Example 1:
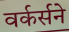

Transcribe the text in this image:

वर्कर्सने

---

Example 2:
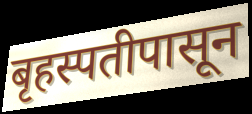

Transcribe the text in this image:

बृहस्पतीपासून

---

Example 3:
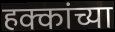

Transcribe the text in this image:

हक्कांच्या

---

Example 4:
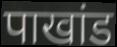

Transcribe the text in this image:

पाखांड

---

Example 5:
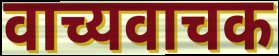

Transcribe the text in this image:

वाच्यवाचक